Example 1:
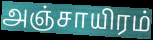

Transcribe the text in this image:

அஞ்சாயிரம்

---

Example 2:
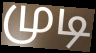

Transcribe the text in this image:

முடி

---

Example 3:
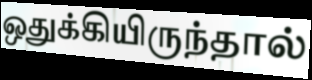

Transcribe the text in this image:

ஒதுக்கியிருந்தால்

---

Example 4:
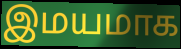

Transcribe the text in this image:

இமயமாக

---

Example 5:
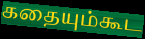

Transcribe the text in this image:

கதையும்கூட